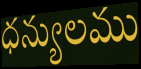
ధన్యులము